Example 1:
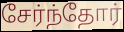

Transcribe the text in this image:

சேர்ந்தோர்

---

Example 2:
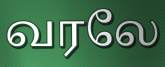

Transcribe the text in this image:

வரலே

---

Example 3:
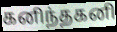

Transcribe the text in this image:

கனிந்தகனி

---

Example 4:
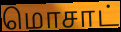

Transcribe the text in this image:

மொசாட்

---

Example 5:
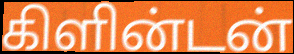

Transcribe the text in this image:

கிளின்டன்